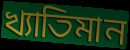
খ্যাতিমান